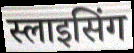
स्लाइसिंग